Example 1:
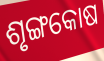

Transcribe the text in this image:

ଶୃଙ୍ଗକୋଷ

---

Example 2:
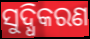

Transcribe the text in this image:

ସୁଦ୍ଧିକରଣ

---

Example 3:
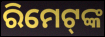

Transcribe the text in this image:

ରିମେଟ୍‍ଙ୍କ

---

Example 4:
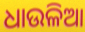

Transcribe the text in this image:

ଧାଉଳିଆ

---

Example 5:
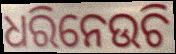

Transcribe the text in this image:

ଧରିନେଉଚି